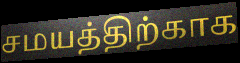
சமயத்திற்காக